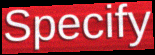
Specify